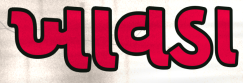
ખાવડા